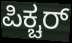
ಪಿಕ್ಚರ್